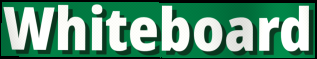
Whiteboard